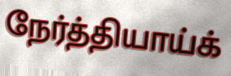
நேர்த்தியாய்க்